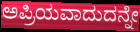
ಅಪ್ರಿಯವಾದುದನ್ನೇ